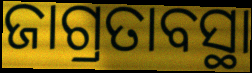
ଜାଗ୍ରତାବସ୍ଥା